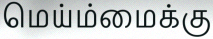
மெய்ம்மைக்கு